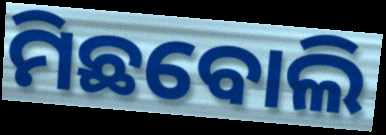
ମିଛବୋଲି